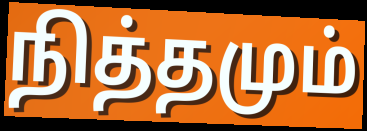
நித்தமும்